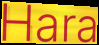
Hara